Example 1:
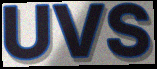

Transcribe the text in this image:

UVS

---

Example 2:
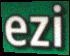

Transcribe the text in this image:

ezi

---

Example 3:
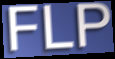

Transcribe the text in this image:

FLP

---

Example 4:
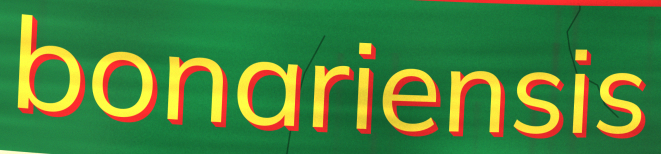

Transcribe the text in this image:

bonariensis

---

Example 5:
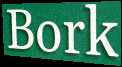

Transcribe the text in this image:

Bork